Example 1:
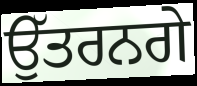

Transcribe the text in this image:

ਉੱਤਰਨਗੇ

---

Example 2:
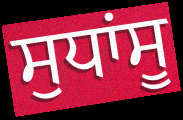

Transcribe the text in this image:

ਸੁਧਾਂਸੂ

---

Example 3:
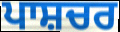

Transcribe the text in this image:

ਪਾਸ਼ਚਰ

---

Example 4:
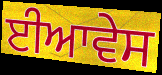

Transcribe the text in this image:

ਈਆਵੇਸ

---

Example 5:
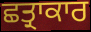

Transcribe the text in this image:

ਛਤ੍ਰਾਕਾਰ